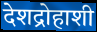
देशद्रोहाशी